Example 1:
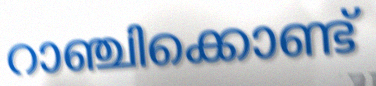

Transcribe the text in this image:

റാഞ്ചിക്കൊണ്ട്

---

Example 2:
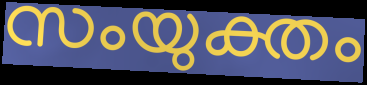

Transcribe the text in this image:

സംയുക്തം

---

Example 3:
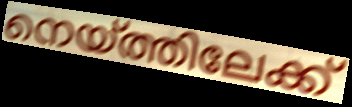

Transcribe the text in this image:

നെയ്ത്തിലേക്ക്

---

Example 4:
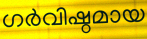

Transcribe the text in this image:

ഗർവിഷ്ഠമായ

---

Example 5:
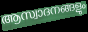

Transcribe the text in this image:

ആസ്വാദനങ്ങളും